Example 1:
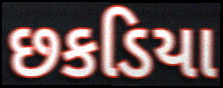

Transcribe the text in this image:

છકડિયા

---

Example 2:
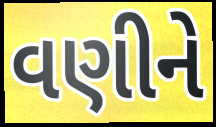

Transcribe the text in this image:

વણીને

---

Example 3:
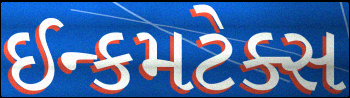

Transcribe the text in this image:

ઈન્કમટેક્સ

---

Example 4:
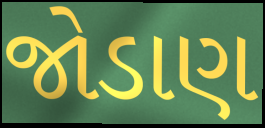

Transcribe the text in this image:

જોડાણ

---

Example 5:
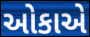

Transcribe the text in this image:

ઓકાએ